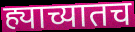
ह्याच्यातच